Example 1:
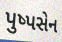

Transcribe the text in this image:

પુષ્પસેન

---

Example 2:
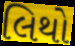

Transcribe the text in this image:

લિથો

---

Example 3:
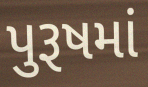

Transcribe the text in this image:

પુરૂષમાં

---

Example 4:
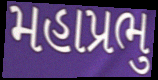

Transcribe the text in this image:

મહાપ્રભુ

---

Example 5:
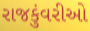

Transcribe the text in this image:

રાજકુંવરીઓ